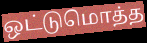
ஒட்டுமொத்த